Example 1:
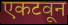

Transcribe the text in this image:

एकटवून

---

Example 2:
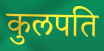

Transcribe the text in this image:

कुलपति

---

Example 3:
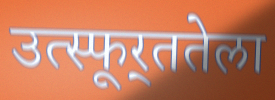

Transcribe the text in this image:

उत्स्फूर्ततेला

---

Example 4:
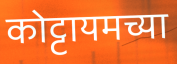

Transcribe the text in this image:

कोट्टायमच्या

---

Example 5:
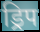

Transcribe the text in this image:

ड्रिप